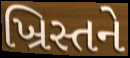
ખ્રિસ્તને